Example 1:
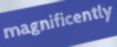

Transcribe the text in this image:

magnificently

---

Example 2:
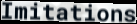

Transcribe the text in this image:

Imitations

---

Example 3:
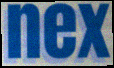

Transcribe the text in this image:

nex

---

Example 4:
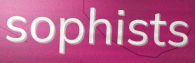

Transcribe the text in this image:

sophists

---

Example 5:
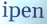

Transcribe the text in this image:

ipen